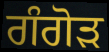
ਗੰਗੋੜ